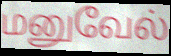
மனுவேல்